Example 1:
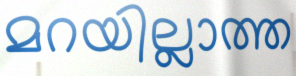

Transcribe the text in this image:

മറയില്ലാത്ത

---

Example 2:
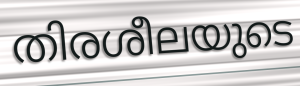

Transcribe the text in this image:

തിരശീലയുടെ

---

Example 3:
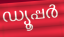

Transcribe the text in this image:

ഡ്യൂപ്പർ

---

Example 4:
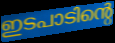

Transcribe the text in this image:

ഇടപാടിന്റെ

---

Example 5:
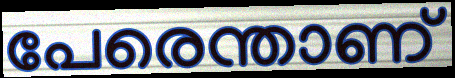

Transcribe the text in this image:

പേരെന്താണ്